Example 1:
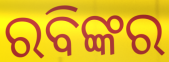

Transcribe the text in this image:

ରବିଙ୍କର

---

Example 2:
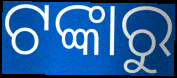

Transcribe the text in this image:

ଟଙ୍କାରୁ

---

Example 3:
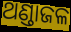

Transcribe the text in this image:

ଥଣ୍ଡାଜଳ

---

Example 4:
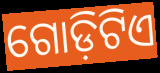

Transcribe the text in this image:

ଗୋଡ଼ିଟିଏ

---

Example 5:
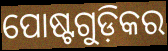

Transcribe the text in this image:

ପୋଷ୍ଟଗୁଡ଼ିକର